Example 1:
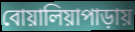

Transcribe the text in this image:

বোয়ালিয়াপাড়ায়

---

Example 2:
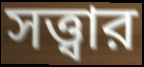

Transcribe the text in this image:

সত্ত্বার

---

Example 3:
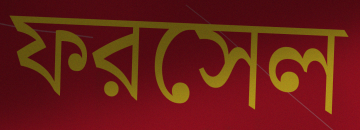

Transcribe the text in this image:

ফরসেল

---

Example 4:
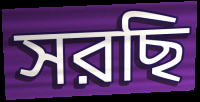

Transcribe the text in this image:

সরছি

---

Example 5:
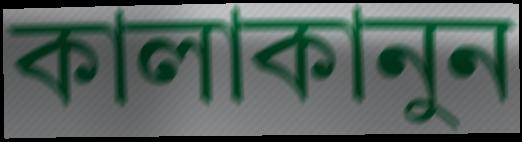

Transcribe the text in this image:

কালাকানুন